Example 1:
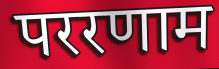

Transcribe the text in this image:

पररणाम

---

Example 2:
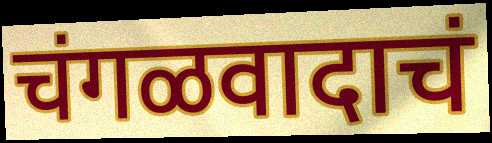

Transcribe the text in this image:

चंगळवादाचं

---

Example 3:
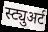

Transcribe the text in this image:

स्ट्युअर्ट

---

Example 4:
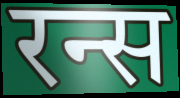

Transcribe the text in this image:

रन्स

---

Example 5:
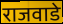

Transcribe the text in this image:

राजवाडे